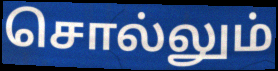
சொல்லும்